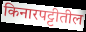
किनारपट्टीतील